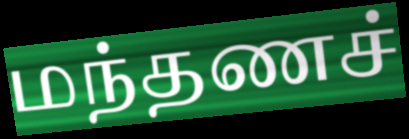
மந்தணச்